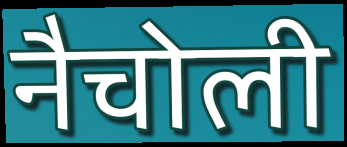
नैचोली